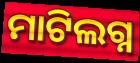
ମାଟିଲଗ୍ନ